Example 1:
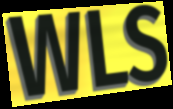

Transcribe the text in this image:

WLS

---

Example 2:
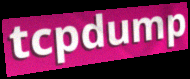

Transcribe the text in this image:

tcpdump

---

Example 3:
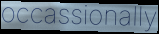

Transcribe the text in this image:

occassionally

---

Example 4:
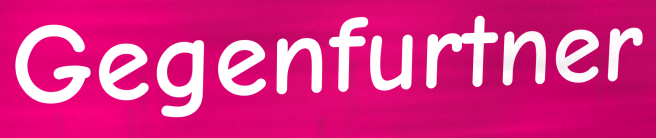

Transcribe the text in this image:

Gegenfurtner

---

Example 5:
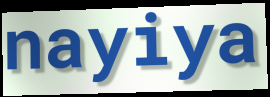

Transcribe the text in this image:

nayiya